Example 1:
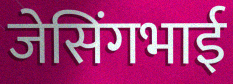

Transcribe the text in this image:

जेसिंगभाई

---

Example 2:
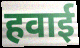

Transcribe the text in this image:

हवाई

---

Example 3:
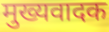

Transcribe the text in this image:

मुख्यवादक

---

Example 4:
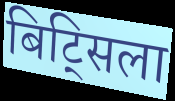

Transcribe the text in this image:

बिट्सिला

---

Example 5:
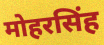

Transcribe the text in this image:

मोहरसिंह